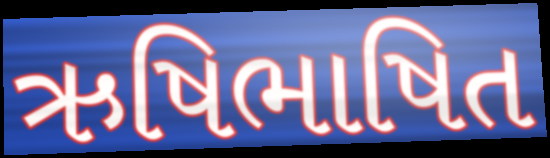
ઋષિભાષિત